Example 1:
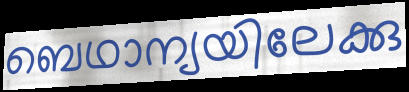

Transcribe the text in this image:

ബെഥാന്യയിലേക്കു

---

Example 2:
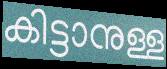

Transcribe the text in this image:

കിട്ടാനുള്ള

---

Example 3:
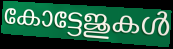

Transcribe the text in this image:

കോട്ടേജുകൾ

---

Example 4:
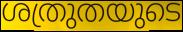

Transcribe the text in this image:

ശത്രുതയുടെ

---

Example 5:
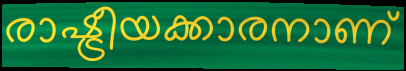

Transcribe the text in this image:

രാഷ്ട്രീയക്കാരനാണ്